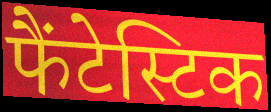
फैंटेस्टिक